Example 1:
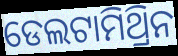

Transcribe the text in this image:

ଡେଲଟାମିଥ୍ରିନ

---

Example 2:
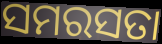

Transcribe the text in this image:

ସମରସତା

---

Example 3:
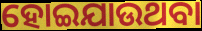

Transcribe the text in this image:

ହୋଇଯାଉଥବା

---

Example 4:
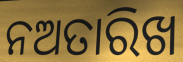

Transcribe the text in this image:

ନଅତାରିଖ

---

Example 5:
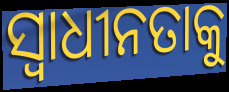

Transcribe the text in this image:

ସ୍ବାଧୀନତାକୁ